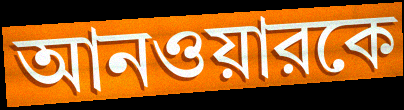
আনওয়ারকে